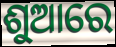
ଶୁଆରେ